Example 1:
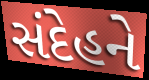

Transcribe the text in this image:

સંદેહને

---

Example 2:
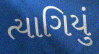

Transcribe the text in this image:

ત્યાગિયું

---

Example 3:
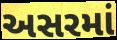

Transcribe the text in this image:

અસરમાં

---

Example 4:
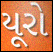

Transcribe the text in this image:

યૂરો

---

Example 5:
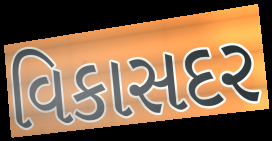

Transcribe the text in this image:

વિકાસદર